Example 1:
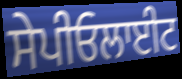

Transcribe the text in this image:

ਸੇਪੀਓਲਾਈਟ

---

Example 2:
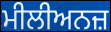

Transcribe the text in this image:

ਮੀਲੀਅਨਜ਼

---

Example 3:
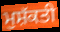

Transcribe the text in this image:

ਮੁਸ਼ੱਕਤੀ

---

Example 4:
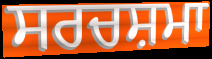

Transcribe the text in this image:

ਸਰਚਸ਼ਮਾ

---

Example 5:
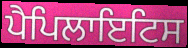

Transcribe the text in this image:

ਪੈਪਿਲਾਇਟਿਸ